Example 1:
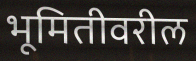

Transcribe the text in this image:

भूमितीवरील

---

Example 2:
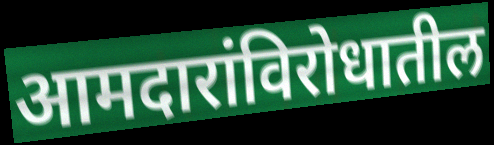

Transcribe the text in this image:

आमदारांविरोधातील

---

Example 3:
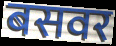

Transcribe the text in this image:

बसवर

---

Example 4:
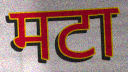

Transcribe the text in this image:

मटा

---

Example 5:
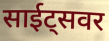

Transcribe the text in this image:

साईट्सवर